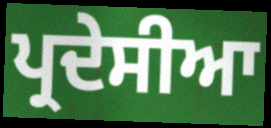
ਪ੍ਰਦੇਸੀਆ